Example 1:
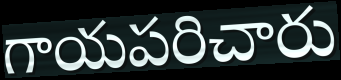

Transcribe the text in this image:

గాయపరిచారు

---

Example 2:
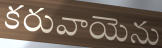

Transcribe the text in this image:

కరువాయెను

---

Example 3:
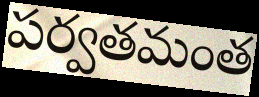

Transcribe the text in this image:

పర్వతమంత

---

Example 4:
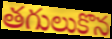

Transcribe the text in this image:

తగులుకొన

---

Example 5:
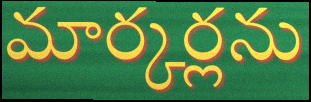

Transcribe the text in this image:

మార్కర్లను